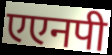
एएनपी